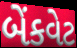
બેંકવેટ